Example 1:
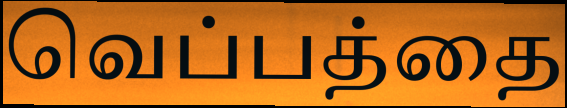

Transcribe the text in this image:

வெப்பத்தை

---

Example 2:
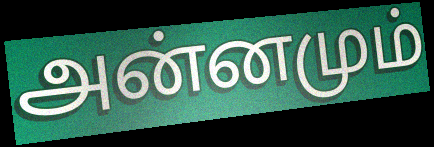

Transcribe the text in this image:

அன்னமும்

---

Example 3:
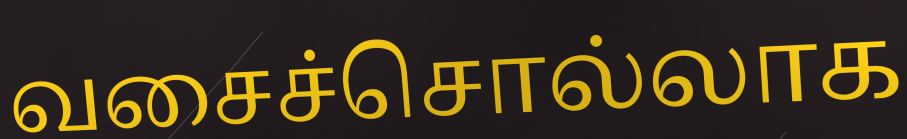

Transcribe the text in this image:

வசைச்சொல்லாக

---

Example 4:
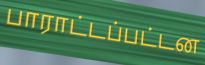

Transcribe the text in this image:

பாராட்டப்பட்டன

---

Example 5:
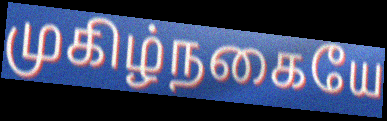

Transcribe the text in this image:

முகிழ்நகையே